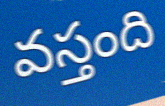
వస్తంది